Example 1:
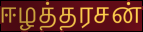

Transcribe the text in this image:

ஈழத்தரசன்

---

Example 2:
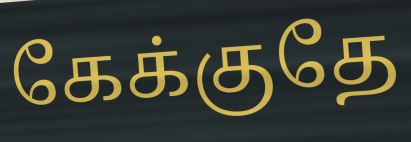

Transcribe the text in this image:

கேக்குதே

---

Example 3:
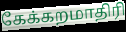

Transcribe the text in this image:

கேக்கறமாதிரி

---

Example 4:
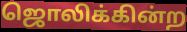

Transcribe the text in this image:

ஜொலிக்கின்ற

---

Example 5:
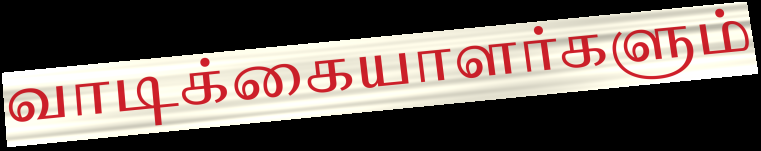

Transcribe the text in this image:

வாடிக்கையாளர்களும்